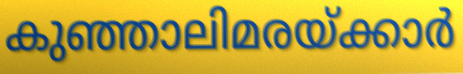
കുഞ്ഞാലിമരയ്ക്കാർ